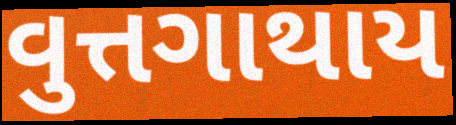
વુત્તગાથાય